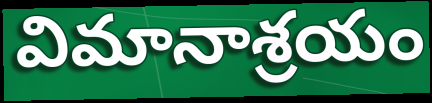
విమానాశ్రయం